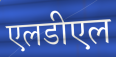
एलडीएल